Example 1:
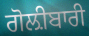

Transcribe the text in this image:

ਗੋਲ਼ੀਬਾਰੀ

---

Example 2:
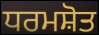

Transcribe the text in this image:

ਧਰਮਸ਼ੋਤ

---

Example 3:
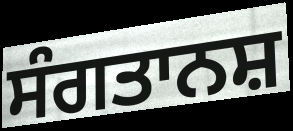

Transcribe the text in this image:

ਸੰਗਤਾਨਸ਼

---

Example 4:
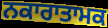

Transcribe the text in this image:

ਨਕਾਰਾਤਾਮਕ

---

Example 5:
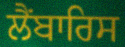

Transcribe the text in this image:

ਲੈਂਬਾਰਿਸ